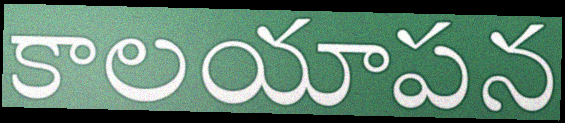
కాలయాపన